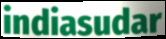
indiasudar